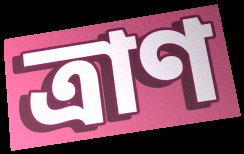
ত্রাণ